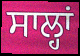
ਸਾਲ੍ਹਾਂ